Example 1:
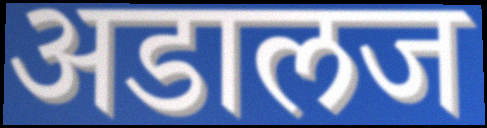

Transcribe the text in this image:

अडालज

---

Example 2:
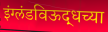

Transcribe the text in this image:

इंग्लंडविऊद्धच्या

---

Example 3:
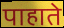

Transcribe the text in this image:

पाहाते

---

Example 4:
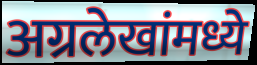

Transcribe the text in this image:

अग्रलेखांमध्ये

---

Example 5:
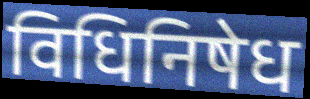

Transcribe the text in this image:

विधिनिषेध